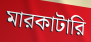
মারকাটারি